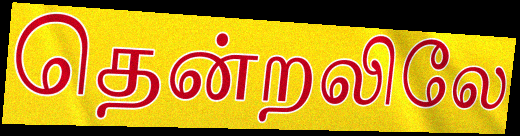
தென்றலிலே